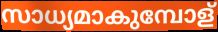
സാധ്യമാകുമ്പോള്